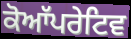
ਕੋਆੱਪਰੇਟਿਵ